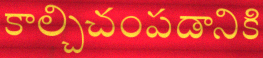
కాల్చిచంపడానికి